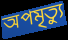
অপমৃত্যু